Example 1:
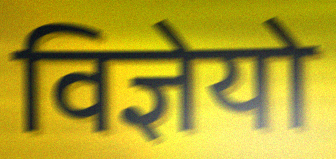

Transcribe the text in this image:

विज्ञेयो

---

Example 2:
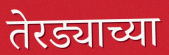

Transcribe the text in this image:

तेरड्याच्या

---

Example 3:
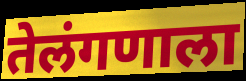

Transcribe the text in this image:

तेलंगणाला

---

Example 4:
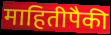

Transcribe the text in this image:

माहितीपैकी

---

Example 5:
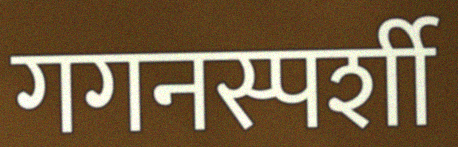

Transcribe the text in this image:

गगनस्पर्शी